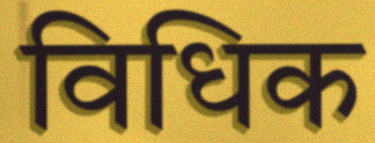
विधिक